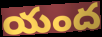
యంద